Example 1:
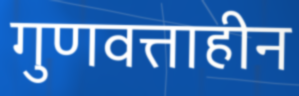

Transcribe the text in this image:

गुणवत्ताहीन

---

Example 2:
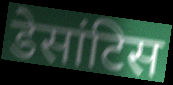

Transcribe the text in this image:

डेसांटिस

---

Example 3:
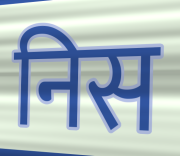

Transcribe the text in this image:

निस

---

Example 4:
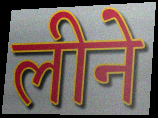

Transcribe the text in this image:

लीने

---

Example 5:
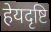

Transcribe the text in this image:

हेयदृष्टि